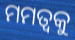
ମମତ୍ୱକୁ